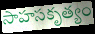
సాహసకృత్యం